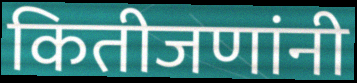
कितीजणांनी